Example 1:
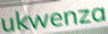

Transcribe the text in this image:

ukwenza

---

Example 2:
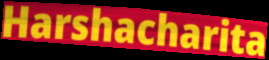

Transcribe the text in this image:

Harshacharita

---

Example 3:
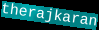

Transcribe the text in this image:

therajkaran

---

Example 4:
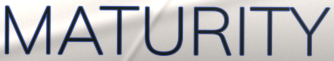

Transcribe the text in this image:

MATURITY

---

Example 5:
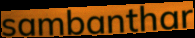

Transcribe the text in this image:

sambanthar